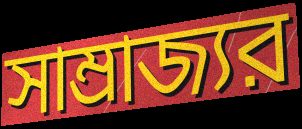
সাম্রাজ্যর